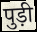
पुड़ी